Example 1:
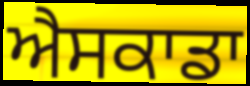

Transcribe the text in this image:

ਐਸਕਾਡਾ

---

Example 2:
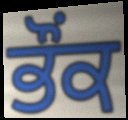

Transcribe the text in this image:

ਭੌਂਕ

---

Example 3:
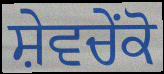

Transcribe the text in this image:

ਸ਼ੇਵਚੇਂਕੋ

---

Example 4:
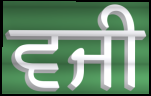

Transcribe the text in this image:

ਵਜੀ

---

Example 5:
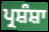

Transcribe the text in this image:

ਪ੍ਰਸ਼ੰਸ਼ਾ